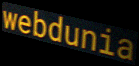
webdunia